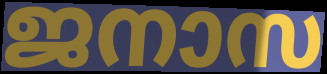
ജനാസ